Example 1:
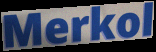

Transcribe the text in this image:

Merkol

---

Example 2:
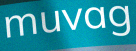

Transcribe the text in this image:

muvag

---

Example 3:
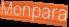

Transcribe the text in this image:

Monpara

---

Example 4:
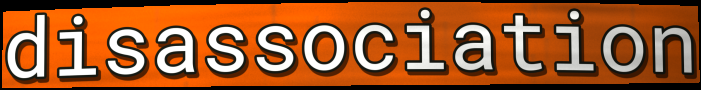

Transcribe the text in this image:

disassociation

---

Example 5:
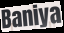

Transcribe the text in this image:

Baniya